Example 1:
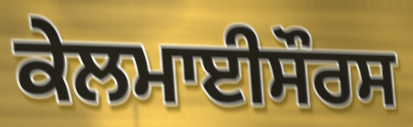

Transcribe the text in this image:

ਕੇਲਮਾਈਸੌਰਸ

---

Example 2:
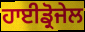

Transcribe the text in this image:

ਹਾਈਡ੍ਰੋਜੇਲ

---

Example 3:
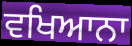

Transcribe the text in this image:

ਵਖਿਆਨਾ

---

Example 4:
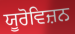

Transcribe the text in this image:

ਯੂਰੋਵਿਜ਼ਨ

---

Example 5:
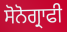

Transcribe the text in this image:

ਸੋਨੋਗ੍ਰਾਫੀ